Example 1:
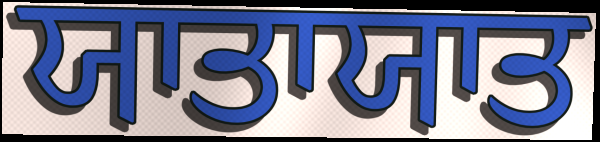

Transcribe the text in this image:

ਯਾਤਾਯਾਤ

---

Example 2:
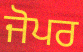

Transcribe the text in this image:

ਜੋਪਰ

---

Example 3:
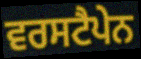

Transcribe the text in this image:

ਵਰਸਟੈਪੇਨ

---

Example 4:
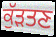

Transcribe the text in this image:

ਕੁੱੜਤਣ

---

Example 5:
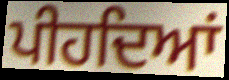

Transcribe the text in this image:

ਪੀਹਦਿਆਂ